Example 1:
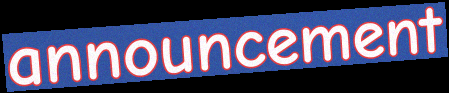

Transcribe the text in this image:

announcement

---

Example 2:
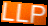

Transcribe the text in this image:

LLP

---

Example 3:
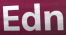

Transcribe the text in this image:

Edn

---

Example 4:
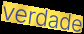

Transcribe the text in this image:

verdade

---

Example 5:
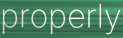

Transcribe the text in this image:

properly